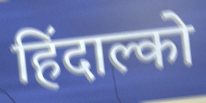
हिंदाल्को